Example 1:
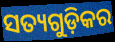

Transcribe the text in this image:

ସତ୍ୟଗୁଡ଼ିକର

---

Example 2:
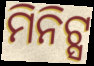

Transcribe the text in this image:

ମିନିଟ୍ସ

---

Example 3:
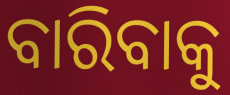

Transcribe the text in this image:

ବାରିବାକୁ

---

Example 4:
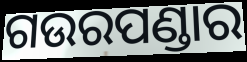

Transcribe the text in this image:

ଗଉରପଣ୍ଡାର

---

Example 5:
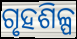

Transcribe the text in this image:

ଗୃହଶିଳ୍ପ